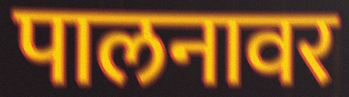
पालनावर